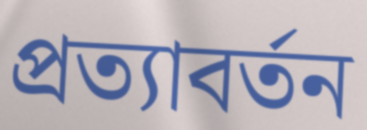
প্ৰত্যাবৰ্তন